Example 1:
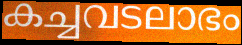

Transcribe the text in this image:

കച്ചവടലാഭം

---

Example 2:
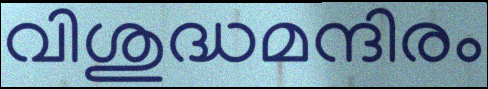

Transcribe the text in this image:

വിശുദ്ധമന്ദിരം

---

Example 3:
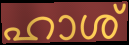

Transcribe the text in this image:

ഹാശ്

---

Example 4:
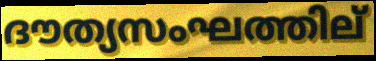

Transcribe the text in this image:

ദൗത്യസംഘത്തില്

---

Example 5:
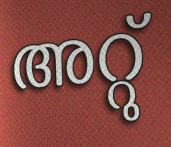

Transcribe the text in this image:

അറ്റു്